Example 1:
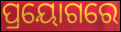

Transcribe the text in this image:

ପ୍ରୟୋଗରେ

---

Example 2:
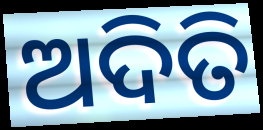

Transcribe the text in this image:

ଅଦିତି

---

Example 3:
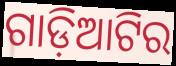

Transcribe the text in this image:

ଗାଡ଼ିଆଟିର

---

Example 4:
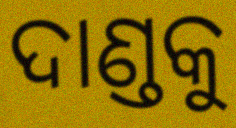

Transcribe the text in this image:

ଦାଣ୍ଡକୁ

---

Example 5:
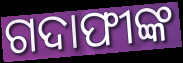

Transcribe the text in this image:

ଗଦାଫୀଙ୍କ